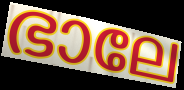
ഭാലേ